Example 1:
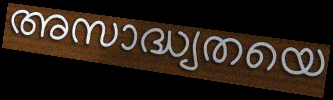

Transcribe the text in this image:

അസാദ്ധ്യതയെ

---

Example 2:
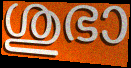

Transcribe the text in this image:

ശുഭാ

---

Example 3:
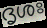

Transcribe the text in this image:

ദൃശഃ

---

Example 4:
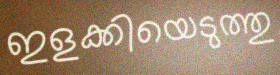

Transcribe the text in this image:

ഇളക്കിയെടുത്തു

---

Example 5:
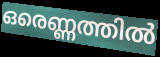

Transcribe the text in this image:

ഒരെണ്ണത്തിൽ